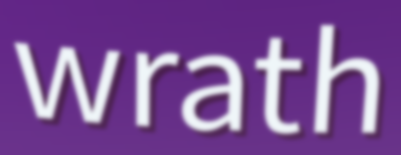
wrath